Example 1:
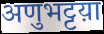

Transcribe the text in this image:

अणुभट्टय़ा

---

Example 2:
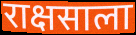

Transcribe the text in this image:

राक्षसाला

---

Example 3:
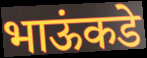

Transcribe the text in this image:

भाऊंकडे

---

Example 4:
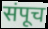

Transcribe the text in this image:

संपूच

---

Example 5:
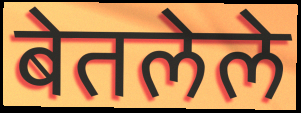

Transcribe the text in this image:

बेतलेले